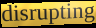
disrupting